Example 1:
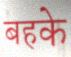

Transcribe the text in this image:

बहके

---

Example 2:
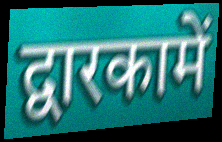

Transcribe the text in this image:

द्वारकामें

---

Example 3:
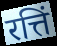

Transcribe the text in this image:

रत्तिं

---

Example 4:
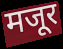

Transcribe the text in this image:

मजूर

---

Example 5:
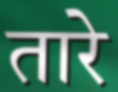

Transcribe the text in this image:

तारे